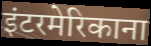
इंटरमेरिकाना